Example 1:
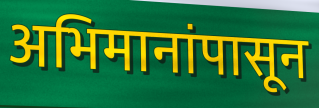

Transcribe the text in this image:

अभिमानांपासून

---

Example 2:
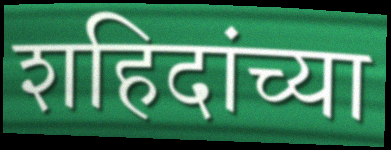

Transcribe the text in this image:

शहिदांच्या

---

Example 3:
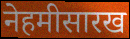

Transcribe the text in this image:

नेहमीसारख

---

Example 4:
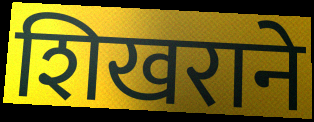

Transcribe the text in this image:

शिखराने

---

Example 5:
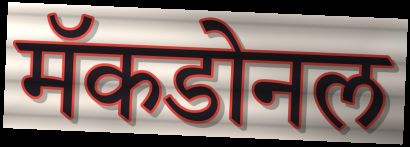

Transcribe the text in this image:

मॅकडोनल